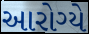
આરોગ્યે